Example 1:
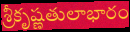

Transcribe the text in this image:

శ్రీకృష్ణతులాభారం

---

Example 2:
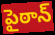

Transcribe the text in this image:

పైఠాన్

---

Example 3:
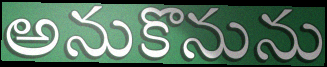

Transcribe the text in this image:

అనుకొనును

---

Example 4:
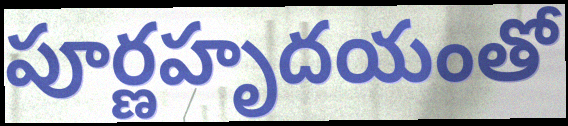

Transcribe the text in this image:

పూర్ణహృదయంతో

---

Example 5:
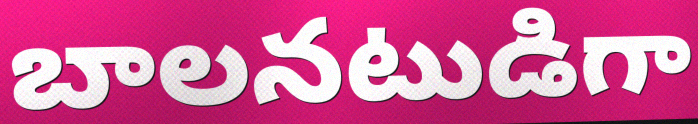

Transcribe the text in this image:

బాలనటుడిగా